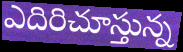
ఎదిరిచూస్తున్న